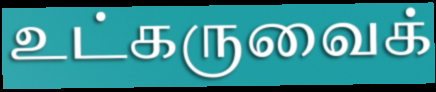
உட்கருவைக்